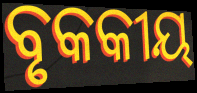
ବୃକକୀୟ